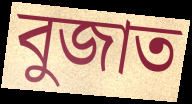
বুজাত